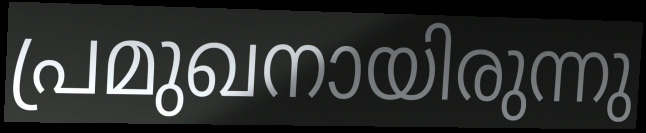
പ്രമുഖനായിരുന്നു